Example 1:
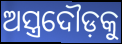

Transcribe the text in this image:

ଅସ୍ତ୍ରଦୌଡ଼କୁ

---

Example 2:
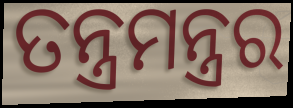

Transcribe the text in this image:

ତନ୍ତ୍ରମନ୍ତ୍ରର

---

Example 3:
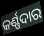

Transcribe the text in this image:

କର୍ଣ୍ଣଦାର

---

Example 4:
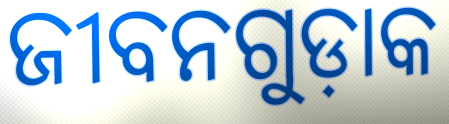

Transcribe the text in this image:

ଜୀବନଗୁଡ଼ାକ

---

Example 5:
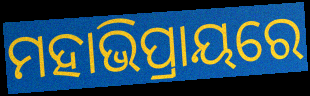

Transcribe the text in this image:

ମହାଭିପ୍ରାୟରେ